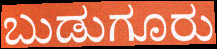
ಬುಡುಗೂರು